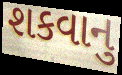
શકવાનુ